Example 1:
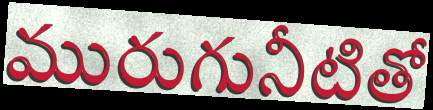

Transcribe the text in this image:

మురుగునీటితో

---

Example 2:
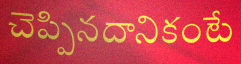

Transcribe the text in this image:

చెప్పినదానికంటే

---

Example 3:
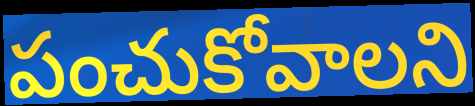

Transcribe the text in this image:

పంచుకోవాలని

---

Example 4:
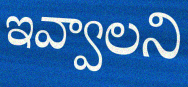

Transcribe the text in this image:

ఇవ్వాలని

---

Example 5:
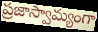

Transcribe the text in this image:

ప్రజాస్వామ్యంగా